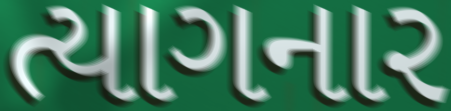
ત્યાગનાર